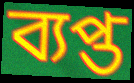
ব্যপ্ত